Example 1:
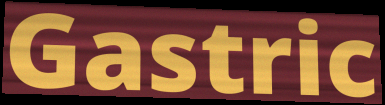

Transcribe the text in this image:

Gastric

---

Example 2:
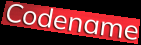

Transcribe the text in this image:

Codename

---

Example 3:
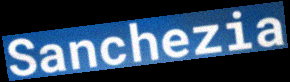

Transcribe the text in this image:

Sanchezia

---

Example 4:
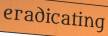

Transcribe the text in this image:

eradicating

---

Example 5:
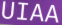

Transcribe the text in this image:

UIAA